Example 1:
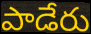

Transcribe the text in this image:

పాడేరు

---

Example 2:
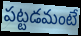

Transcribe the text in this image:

పట్టడమంటే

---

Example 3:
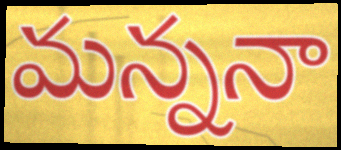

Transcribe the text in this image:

మన్ననా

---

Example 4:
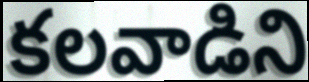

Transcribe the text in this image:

కలవాడిని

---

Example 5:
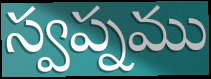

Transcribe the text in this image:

స్వప్నము